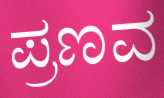
ಪ್ರಣವ